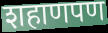
शहाणपण